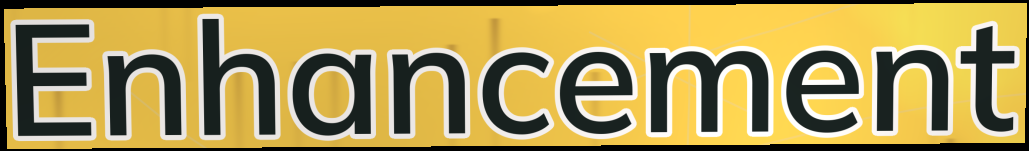
Enhancement